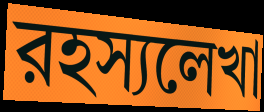
রহস্যলেখা